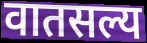
वातसल्य